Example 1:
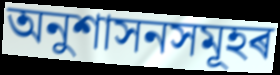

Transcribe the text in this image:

অনুশাসনসমূহৰ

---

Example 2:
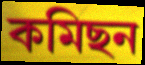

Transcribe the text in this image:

কমিছন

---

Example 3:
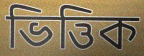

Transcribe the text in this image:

ভিত্তিক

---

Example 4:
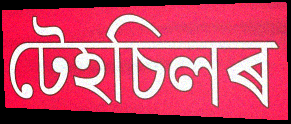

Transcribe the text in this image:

টেহচিলৰ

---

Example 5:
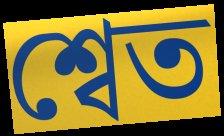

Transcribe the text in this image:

শ্বেত